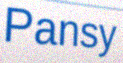
Pansy